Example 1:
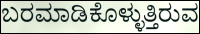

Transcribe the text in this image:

ಬರಮಾಡಿಕೊಳ್ಳುತ್ತಿರುವ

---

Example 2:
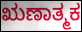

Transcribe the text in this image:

ಋಣಾತ್ಮಕ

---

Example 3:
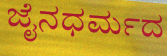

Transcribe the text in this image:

ಜೈನಧರ್ಮದ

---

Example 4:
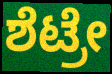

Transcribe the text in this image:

ಶೆಟ್ರೇ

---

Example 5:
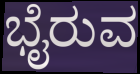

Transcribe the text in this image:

ಭೈರುವ